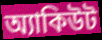
অ্যাকিউট